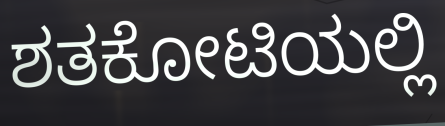
ಶತಕೋಟಿಯಲ್ಲಿ